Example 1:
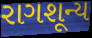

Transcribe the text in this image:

રાગશૂન્ય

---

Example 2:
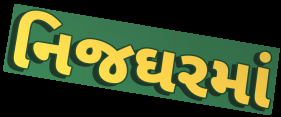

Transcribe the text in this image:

નિજઘરમાં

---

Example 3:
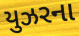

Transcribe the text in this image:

યુઝરના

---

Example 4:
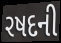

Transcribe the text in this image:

રષદની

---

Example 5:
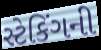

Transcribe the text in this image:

સ્ટેકિંગની